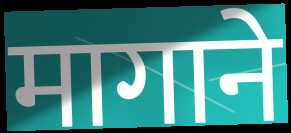
मागाने